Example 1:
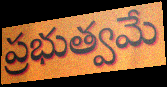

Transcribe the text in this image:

ప్రభుత్వమే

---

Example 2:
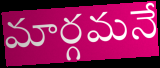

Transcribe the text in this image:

మార్గమనే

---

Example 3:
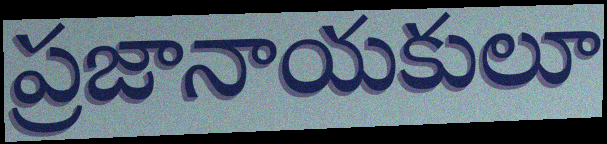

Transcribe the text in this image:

ప్రజానాయకులూ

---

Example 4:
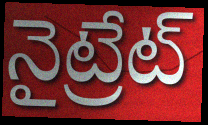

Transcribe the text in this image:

నైట్రేట్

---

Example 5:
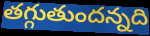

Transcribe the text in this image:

తగ్గుతుందన్నది